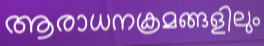
ആരാധനക്രമങ്ങളിലും